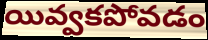
యివ్వకపోవడం